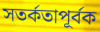
সতর্কতাপূর্বক